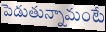
పెడుతున్నామంటే